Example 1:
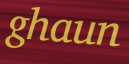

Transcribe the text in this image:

ghaun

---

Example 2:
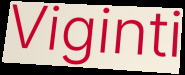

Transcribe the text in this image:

Viginti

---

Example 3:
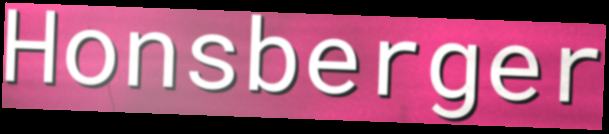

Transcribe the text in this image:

Honsberger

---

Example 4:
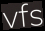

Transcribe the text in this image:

vfs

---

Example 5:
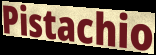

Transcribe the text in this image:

Pistachio